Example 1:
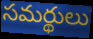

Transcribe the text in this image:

సమర్థులు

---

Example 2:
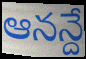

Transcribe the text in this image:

ఆనన్దే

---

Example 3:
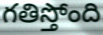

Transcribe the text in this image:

గతిస్తోంది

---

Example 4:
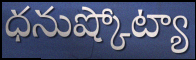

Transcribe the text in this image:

ధనుష్కోట్యా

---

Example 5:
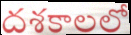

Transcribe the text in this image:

దశకాలలో